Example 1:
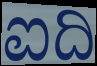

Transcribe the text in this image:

ಐದಿ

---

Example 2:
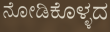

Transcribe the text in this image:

ನೋಡಿಕೊಳ್ಳದ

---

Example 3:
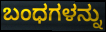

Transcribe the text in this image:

ಬಂಧಗಳನ್ನು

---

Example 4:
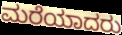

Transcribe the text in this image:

ಮರೆಯಾದರು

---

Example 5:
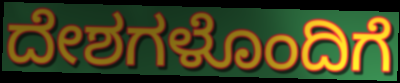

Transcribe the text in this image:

ದೇಶಗಳೊಂದಿಗೆ